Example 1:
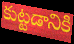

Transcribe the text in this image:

కుట్టడానికి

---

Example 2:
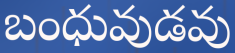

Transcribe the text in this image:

బంధువుడవు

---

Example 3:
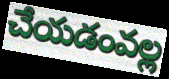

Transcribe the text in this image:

చేయడంవల్ల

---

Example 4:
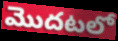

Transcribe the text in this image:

మొదటలో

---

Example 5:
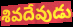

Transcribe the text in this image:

శివదేవుడు